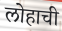
लोहाची